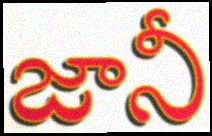
జానీ